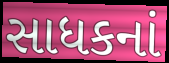
સાધકનાં